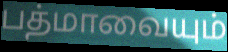
பத்மாவையும்